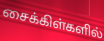
சைக்கிள்களில்